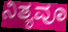
ನಿತ್ಯವೂ